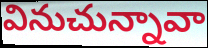
వినుచున్నావా